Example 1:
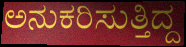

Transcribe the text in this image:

ಅನುಕರಿಸುತ್ತಿದ್ದ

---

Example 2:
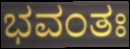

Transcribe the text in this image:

ಭವಂತಃ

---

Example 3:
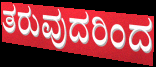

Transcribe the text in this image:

ತರುವುದರಿಂದ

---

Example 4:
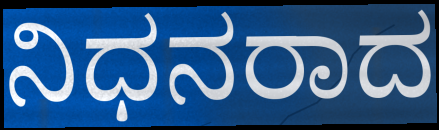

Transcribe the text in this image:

ನಿಧನರಾದ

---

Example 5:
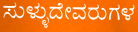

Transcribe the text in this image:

ಸುಳ್ಳುದೇವರುಗಳ